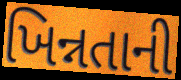
ખિન્નતાની